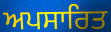
ਅਪਸਾਰਿਤ